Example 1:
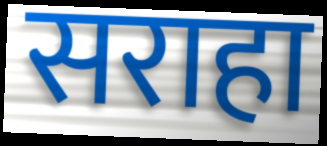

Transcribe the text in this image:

सराहा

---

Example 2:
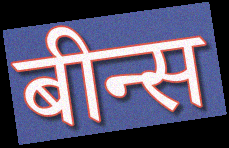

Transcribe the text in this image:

बीन्स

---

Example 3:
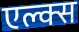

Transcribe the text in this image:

एल्क्स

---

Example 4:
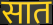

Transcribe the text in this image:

सात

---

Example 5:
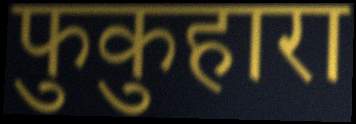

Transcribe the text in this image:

फुकुहारा